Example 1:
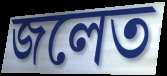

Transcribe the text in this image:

জলেত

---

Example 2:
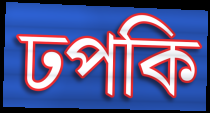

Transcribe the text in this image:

ঢপকি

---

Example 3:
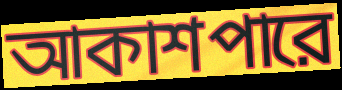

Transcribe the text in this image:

আকাশপারে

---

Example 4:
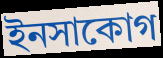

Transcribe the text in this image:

ইনসাকোগ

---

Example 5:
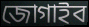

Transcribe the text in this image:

জোগাইব